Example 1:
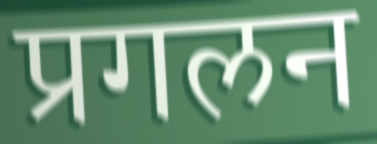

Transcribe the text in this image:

प्रगलन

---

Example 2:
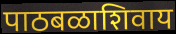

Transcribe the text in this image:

पाठबळाशिवाय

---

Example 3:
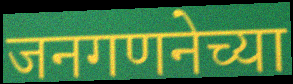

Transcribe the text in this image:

जनगणनेच्या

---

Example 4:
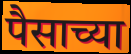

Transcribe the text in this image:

पैसाच्या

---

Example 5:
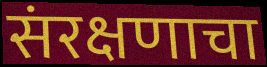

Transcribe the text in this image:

संरक्षणाचा